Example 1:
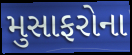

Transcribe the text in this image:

મુસાફરોના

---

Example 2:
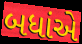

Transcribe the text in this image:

બધાંએ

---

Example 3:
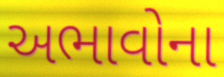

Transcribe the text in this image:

અભાવોના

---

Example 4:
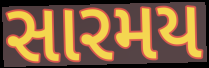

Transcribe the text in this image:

સારમય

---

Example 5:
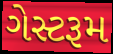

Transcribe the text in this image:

ગેસ્ટરૂમ